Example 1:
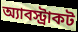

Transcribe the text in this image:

অ্যাবস্ট্রাকট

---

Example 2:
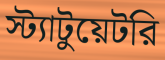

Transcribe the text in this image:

স্ট্যাটুয়েটরি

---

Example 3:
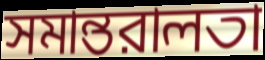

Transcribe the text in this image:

সমান্তরালতা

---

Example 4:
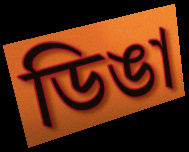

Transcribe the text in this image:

ডিঙা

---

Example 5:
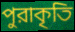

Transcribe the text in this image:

পুরাকৃতি